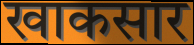
खाकसार